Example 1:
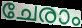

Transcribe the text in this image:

ചേരാം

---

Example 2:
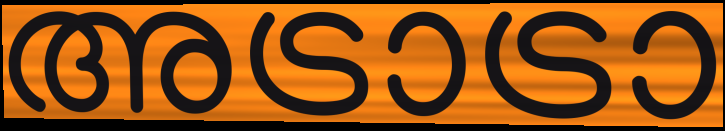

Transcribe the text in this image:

അട്രാട്രാ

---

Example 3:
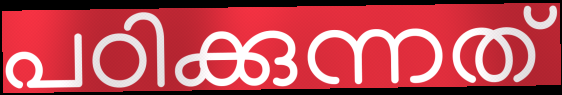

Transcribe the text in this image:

പഠിക്കുന്നത്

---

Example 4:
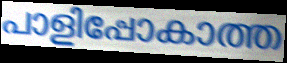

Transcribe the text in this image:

പാളിപ്പോകാത്ത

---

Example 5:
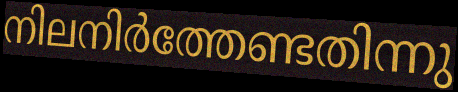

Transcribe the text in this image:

നിലനിർത്തേണ്ടതിന്നു